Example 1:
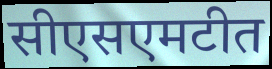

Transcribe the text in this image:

सीएसएमटीत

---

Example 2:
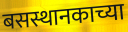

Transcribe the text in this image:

बसस्थानकाच्या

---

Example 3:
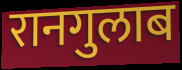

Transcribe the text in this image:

रानगुलाब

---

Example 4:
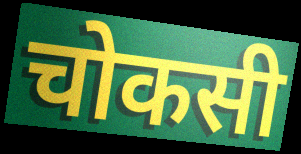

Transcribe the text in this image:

चोकसी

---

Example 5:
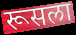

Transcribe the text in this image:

रूसला